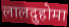
लालदुहोमा